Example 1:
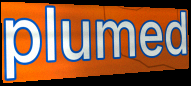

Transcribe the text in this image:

plumed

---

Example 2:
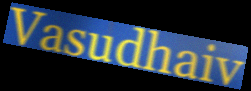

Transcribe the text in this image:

Vasudhaiv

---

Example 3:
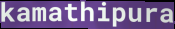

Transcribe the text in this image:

kamathipura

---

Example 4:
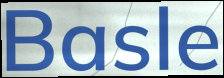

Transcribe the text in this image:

Basle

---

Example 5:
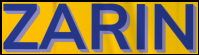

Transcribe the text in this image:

ZARIN